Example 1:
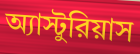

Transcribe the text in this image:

অ্যাস্টুরিয়াস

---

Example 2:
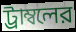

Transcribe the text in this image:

ট্রাম্বলের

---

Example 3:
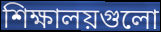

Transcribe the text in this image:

শিক্ষালয়গুলো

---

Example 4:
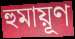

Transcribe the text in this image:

হুমায়ূণ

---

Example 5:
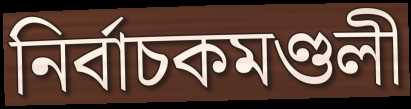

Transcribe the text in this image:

নির্বাচকমণ্ডলী